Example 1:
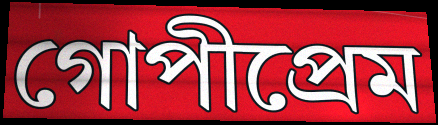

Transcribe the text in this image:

গোপীপ্রেম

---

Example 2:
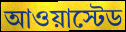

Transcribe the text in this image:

আওয়াস্টেড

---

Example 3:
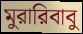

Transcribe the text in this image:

মুরারিবাবু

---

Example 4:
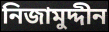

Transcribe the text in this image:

নিজামুদ্দীন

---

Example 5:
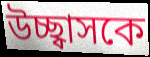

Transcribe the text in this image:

উচ্ছ্বাসকে